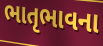
ભાતૃભાવના